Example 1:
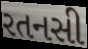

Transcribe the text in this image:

રતનસી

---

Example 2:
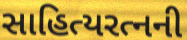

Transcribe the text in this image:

સાહિત્યરત્નની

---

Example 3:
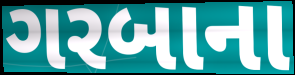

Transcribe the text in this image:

ગરબાના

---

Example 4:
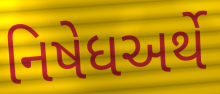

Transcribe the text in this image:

નિષેધઅર્થે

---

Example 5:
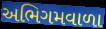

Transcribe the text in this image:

અભિગમવાળા